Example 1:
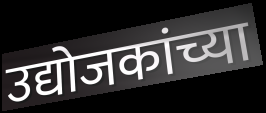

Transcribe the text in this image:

उद्योजकांच्या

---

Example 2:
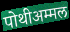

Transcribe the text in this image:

पोथीअम्मल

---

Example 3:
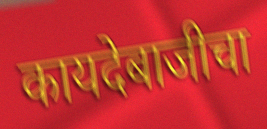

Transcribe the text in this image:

कायदेबाजीचा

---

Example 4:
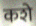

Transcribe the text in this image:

कशे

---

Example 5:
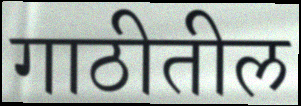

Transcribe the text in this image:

गाठीतील